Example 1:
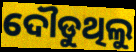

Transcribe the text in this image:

ଦୌଡୁଥିଲୁ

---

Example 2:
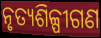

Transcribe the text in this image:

ନୃତ୍ୟଶିଳ୍ପୀଗଣ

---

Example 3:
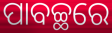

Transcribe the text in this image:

ପାବଚ୍ଛରେ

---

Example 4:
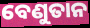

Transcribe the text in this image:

ବେଣୁତାନ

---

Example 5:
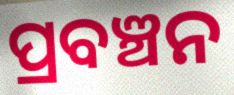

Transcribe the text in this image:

ପ୍ରବଞ୍ଚନ